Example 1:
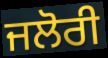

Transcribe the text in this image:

ਜਲੋਰੀ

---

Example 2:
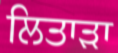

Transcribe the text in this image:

ਲਿਤਾੜਾ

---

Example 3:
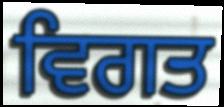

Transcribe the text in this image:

ਵਿਗਤ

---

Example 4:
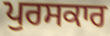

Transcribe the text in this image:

ਪੁਰਸਕਾਰ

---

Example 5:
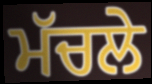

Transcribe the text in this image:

ਮੱਚਲੇ